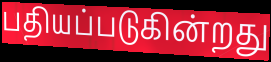
பதியப்படுகின்றது